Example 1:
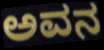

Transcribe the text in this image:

ಅವನ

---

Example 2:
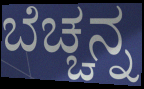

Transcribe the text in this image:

ಬೆಚ್ಚನ್ನ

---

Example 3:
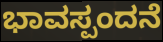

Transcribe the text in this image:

ಭಾವಸ್ಪಂದನೆ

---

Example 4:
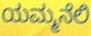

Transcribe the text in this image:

ಯಮ್ಮನೆಲಿ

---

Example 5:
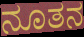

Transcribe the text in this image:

ನೂತನ